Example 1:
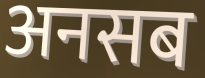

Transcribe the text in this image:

अनसब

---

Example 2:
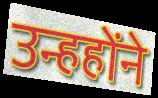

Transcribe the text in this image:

उन्हहोंने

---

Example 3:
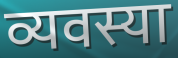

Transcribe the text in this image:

व्यवस्या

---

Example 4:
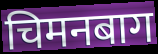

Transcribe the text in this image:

चिमनबाग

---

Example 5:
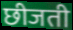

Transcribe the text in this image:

छीजती